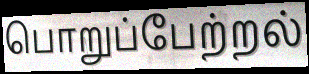
பொறுப்பேற்றல்